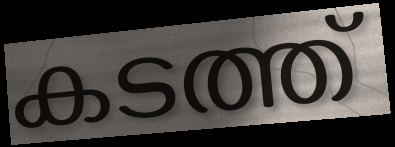
കടത്ത്